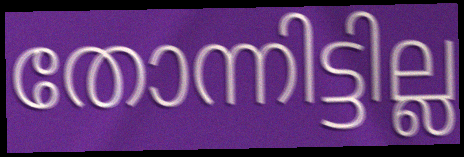
തോന്നിട്ടില്ല